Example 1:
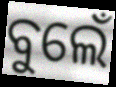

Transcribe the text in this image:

ବୁଲେଁ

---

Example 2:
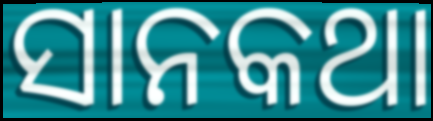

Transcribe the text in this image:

ସାନକଥା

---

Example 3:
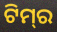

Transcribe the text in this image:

ଟିମ୍‌ର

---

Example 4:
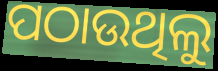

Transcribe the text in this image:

ପଠାଉଥିଲୁ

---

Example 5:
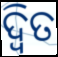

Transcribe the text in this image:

ଦ୍ୱିତ